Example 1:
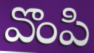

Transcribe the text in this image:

వొంపి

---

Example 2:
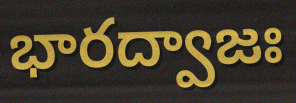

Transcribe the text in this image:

భారద్వాజః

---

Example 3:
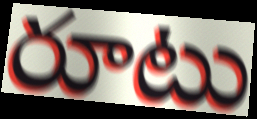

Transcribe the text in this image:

రూటు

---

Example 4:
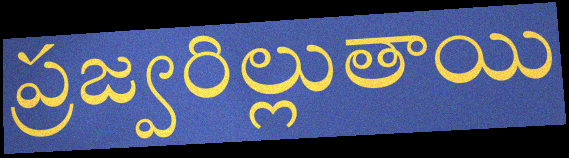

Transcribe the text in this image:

ప్రజ్వరిల్లుతాయి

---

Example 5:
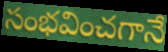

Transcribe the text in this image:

సంభవించగానే